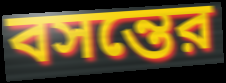
বসন্তের